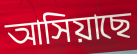
আসিয়াছে